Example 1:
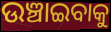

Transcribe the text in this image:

ଉଞ୍ଚାଇବାକୁ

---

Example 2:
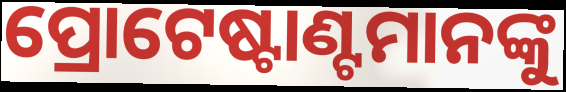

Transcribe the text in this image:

ପ୍ରୋଟେଷ୍ଟାଣ୍ଟମାନଙ୍କୁ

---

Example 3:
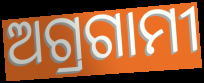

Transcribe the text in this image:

ଅଗ୍ରଗାମୀ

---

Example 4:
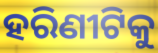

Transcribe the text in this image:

ହରିଣୀଟିକୁ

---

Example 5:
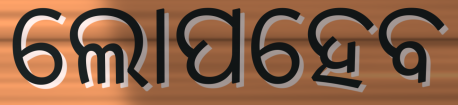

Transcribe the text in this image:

ଲୋପହେବ